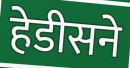
हेडीसने